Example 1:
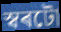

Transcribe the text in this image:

স্বৰটো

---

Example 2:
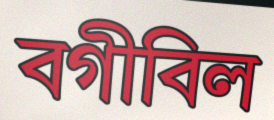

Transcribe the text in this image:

বগীবিল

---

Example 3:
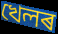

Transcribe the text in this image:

খেলৰ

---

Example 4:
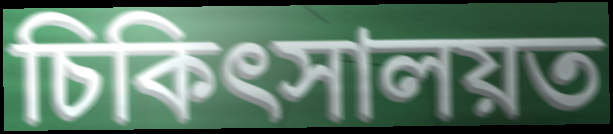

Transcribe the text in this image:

চিকিৎসালয়ত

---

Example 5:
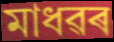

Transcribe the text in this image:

মাধৱৰ